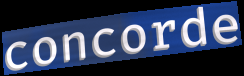
concorde